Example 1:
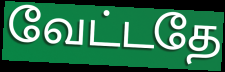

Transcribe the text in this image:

வேட்டதே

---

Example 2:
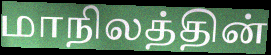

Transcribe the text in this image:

மாநிலத்தின்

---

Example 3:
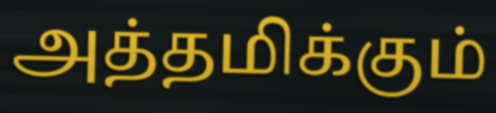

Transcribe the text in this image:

அத்தமிக்கும்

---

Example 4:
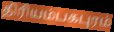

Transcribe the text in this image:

திரியம்பகபுரம்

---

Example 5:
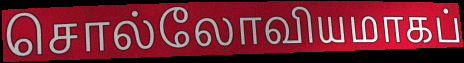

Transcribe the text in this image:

சொல்லோவியமாகப்